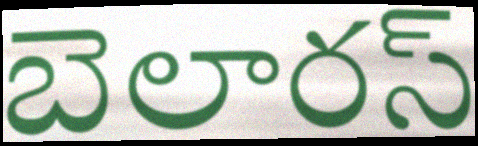
బెలారస్